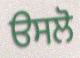
ੳਸਲੋ